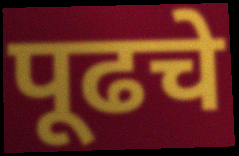
पूढचे